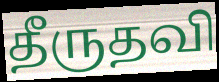
தீருதவி